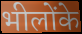
भीलोंके